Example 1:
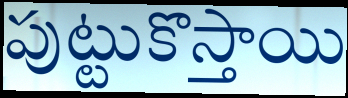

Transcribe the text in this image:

పుట్టుకొస్తాయి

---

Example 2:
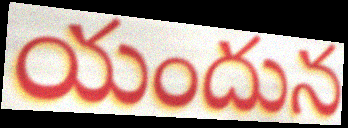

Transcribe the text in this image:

యందున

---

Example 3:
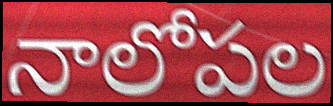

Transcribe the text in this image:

నాలోపల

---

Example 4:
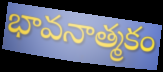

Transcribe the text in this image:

భావనాత్మకం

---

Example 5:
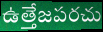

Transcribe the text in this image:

ఉత్తేజపరచు